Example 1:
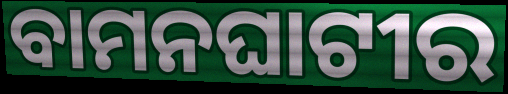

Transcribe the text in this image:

ବାମନଘାଟୀର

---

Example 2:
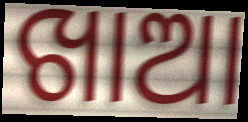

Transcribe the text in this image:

ଖାଆ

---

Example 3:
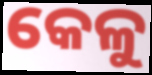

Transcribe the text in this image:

କେଳୁ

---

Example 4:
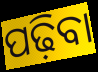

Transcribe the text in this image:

ପଢ଼ିବା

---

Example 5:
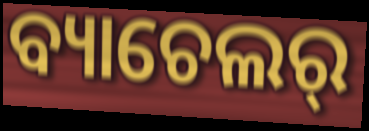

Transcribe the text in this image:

ବ୍ୟାଚେଲର୍